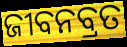
ଜୀବନବ୍ରତ